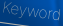
Keyword